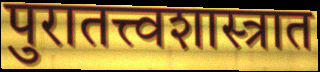
पुरातत्त्वशास्त्रात